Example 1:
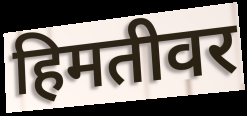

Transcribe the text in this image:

हिमतीवर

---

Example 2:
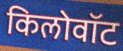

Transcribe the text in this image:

किलोवॉट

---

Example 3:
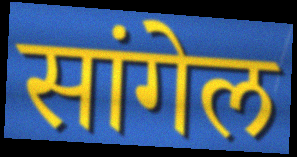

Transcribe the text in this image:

सांगेल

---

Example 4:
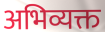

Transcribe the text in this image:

अभिव्यक्त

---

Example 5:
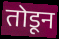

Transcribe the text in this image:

तोडून